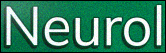
Neurol